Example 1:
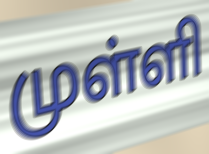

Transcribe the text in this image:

முள்ளி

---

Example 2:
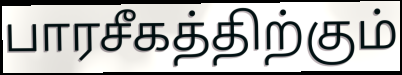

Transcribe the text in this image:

பாரசீகத்திற்கும்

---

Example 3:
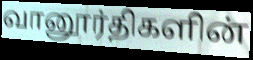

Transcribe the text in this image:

வானூர்திகளின்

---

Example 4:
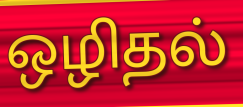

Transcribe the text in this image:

ஒழிதல்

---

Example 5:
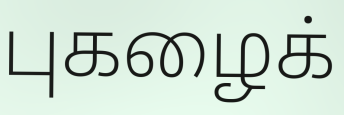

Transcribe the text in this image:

புகழைக்